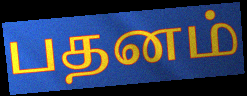
பதனம்